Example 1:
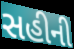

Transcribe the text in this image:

સહીની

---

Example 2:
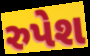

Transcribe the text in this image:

રુપેશ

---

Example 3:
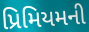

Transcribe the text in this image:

પ્રિમિયમની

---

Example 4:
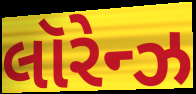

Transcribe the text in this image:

લૉરેન્ઝ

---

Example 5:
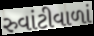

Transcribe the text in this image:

રુવાંટીવાળાં